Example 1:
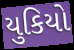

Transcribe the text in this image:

યુકિયો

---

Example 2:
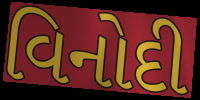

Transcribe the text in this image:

વિનોદી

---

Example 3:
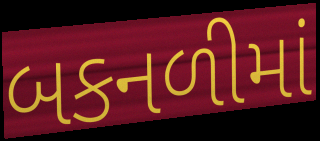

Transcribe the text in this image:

બકનળીમાં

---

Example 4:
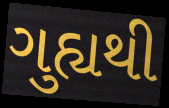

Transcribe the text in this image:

ગુહ્યથી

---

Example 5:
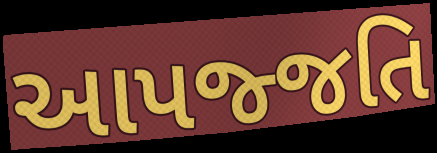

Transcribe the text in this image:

આપજ્જતિ